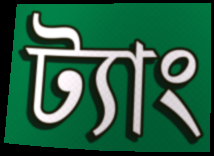
ট্যাং